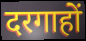
दरगाहों